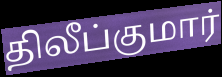
திலீப்குமார்